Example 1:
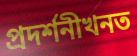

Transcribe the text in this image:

প্ৰদৰ্শনীখনত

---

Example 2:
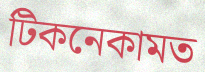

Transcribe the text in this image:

টিকনেকামত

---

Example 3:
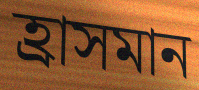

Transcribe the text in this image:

হ্ৰাসমান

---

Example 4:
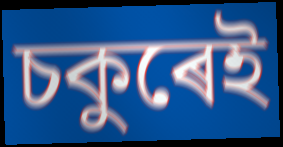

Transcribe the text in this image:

চকুৰেই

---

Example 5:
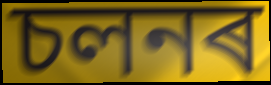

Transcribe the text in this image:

চলনৰ